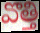
వొత్తి